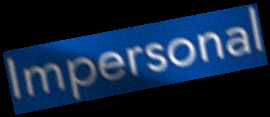
Impersonal